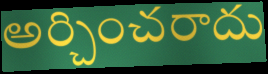
అర్చించరాదు